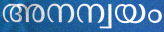
അനന്വയം